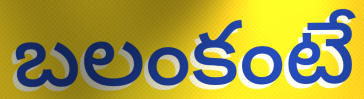
బలంకంటే